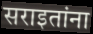
सराइतांना